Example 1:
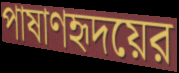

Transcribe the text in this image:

পাষাণহৃদয়ের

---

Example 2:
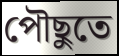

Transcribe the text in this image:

পৌছুতে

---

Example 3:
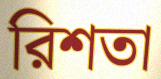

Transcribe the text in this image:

রিশতা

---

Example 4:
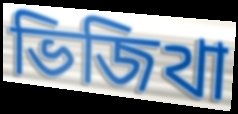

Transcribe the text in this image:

ভিজিথা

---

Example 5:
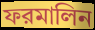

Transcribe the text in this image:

ফরমালিন